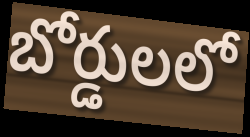
బోర్డులలో